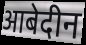
आबेदीन